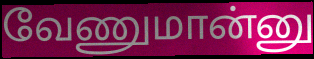
வேணுமான்னு